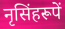
नृसिंहरूपें